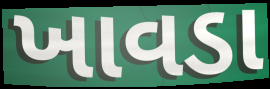
ખાવડા